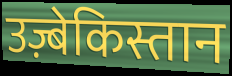
उज़्बेकिस्तान